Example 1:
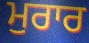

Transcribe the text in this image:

ਮੁਰਾਰ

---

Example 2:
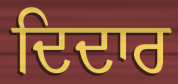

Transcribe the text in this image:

ਦਿਦਾਰ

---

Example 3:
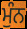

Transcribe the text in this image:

ਮੁੰਨ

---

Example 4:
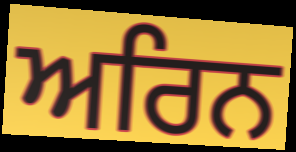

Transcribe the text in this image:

ਅਰਿਨ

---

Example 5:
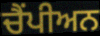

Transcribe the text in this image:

ਚੈਂਪੀਅਨ